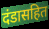
दंडासहित